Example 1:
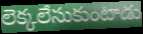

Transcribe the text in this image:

లెక్కలేసుకుంటాడు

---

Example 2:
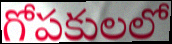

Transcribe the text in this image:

గోపకులలో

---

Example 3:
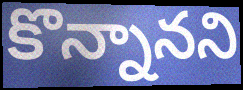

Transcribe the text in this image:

కొన్నానని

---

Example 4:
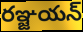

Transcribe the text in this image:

రఞ్జయన్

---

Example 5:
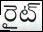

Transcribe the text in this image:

రైట్